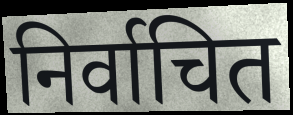
निर्वाचित